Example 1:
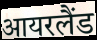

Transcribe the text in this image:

आयरलैंड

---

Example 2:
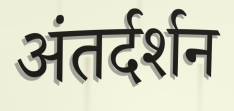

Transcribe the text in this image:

अंतर्दर्शन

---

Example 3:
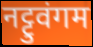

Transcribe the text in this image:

नट्टुवंगम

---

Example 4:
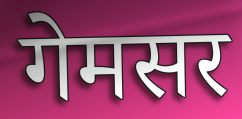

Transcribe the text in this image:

गेमसर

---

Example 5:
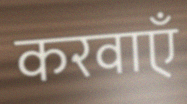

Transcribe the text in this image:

करवाएँ